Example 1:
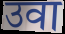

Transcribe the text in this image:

उवा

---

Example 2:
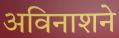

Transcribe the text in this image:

अविनाशने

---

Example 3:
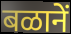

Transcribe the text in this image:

बळानें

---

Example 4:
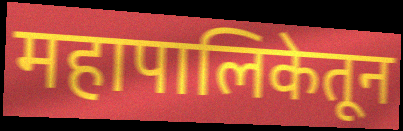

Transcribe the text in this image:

महापालिकेतून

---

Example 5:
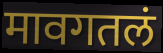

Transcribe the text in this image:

मावगतलं